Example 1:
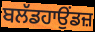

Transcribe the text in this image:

ਬਲੱਡਹਾਉਂਡਜ਼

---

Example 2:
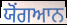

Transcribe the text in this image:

ਯੋਂਗਆਨ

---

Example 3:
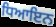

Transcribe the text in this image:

ਧਿਆਇਨ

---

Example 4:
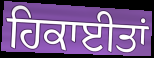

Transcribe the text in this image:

ਹਿਕਾਈਤਾਂ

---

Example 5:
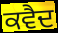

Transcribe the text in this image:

ਕਵੈਦ